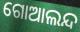
ଗୋଆଲନ୍ଦ